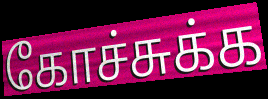
கோச்சுக்க